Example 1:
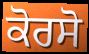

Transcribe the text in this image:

ਕੋਰਸੋ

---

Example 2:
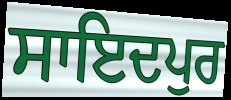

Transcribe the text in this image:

ਸਾਇਦਪੁਰ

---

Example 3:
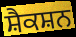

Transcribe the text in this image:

ਸ਼ੈਕਸ਼ਨ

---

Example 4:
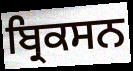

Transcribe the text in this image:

ਬ੍ਰਿਕਸਨ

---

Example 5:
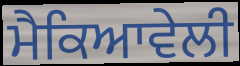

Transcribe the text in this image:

ਮੈਕਿਆਵੇਲੀ